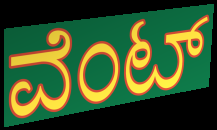
ವೆಂಟ್